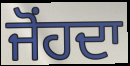
ਜੋਂਹਦਾ